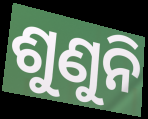
ଶୁଣୁନି